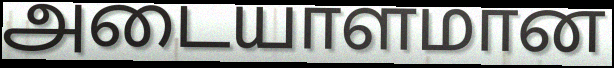
அடையாளமான